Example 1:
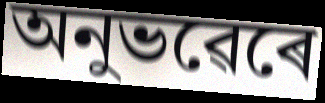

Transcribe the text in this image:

অনুভৱেৰে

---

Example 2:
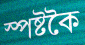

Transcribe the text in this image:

স্পষ্টকৈ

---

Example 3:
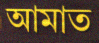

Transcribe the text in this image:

আমাত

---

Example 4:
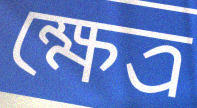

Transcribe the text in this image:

ক্ষেত্ৰ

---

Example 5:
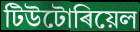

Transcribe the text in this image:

টিউটোৰিয়েল